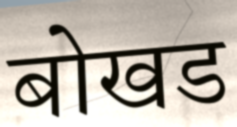
बोखड